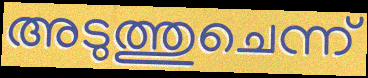
അടുത്തുചെന്ന്